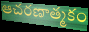
ఆచరణాత్మకం